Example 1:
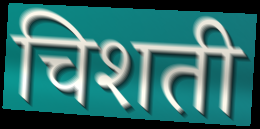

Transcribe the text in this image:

चिशती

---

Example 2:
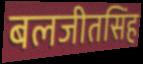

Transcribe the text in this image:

बलजीतसिंह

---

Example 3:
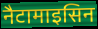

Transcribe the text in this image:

नैटामाइसिन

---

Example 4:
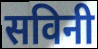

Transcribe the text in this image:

सविनी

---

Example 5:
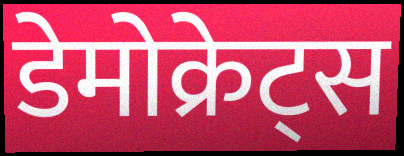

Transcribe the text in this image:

डेमोक्रेट्स